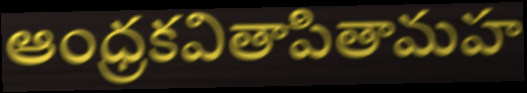
ఆంధ్రకవితాపితామహ